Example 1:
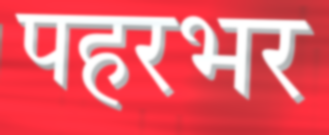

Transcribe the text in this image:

पहरभर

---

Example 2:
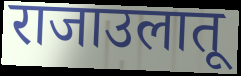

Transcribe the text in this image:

राजाउलातू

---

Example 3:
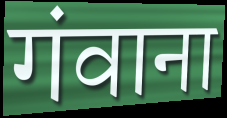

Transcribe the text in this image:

गंवाना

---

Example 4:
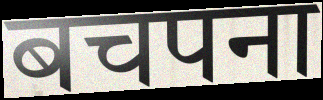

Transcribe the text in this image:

बचपना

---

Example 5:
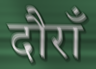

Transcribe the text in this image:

दौराँ